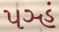
પઞ્હં